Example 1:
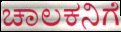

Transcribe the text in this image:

ಚಾಲಕನಿಗೆ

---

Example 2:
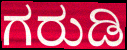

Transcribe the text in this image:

ಗರುಡಿ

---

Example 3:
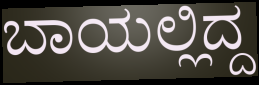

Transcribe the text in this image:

ಬಾಯಲ್ಲಿದ್ದ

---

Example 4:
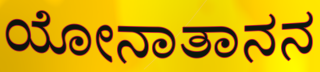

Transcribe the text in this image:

ಯೋನಾತಾನನ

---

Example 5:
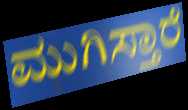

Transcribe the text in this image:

ಮುಗಿಸ್ತಾರೆ